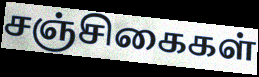
சஞ்சிகைகள்